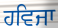
ਹਵਿਜਾ